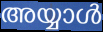
അയ്യാൾ